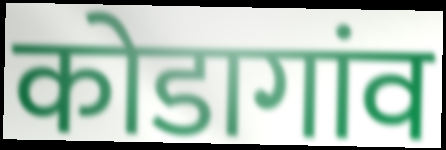
कोडागांव